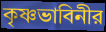
কৃষ্ণভাবিনীর